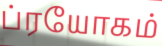
ப்ரயோகம்